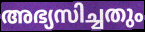
അഭ്യസിച്ചതും